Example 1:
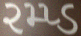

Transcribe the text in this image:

રમ્પ્ડ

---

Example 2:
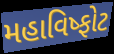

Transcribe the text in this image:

મહાવિષ્ફોટ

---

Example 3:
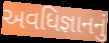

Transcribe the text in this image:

અવધિજ્ઞાનનું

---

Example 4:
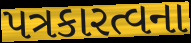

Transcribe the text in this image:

પત્રકારત્વના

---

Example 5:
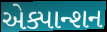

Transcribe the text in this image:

એક્પાન્શન